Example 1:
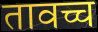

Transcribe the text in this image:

तावच्च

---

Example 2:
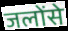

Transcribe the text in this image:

जलोंसे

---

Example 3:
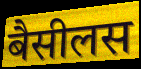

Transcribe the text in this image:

बैसीलस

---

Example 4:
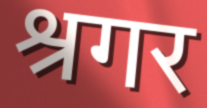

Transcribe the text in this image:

श्रगर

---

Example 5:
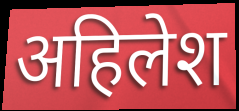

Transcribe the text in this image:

अहिलेश